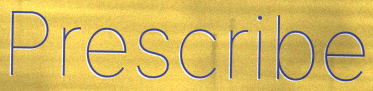
Prescribe